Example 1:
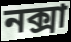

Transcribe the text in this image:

নক্সা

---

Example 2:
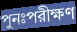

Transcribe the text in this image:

পুনঃপরীক্ষণ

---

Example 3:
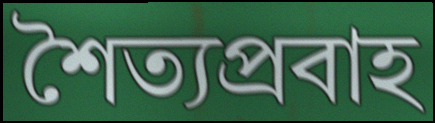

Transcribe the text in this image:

শৈত্যপ্রবাহ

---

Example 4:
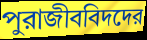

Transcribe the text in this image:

পুরাজীববিদদের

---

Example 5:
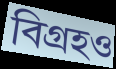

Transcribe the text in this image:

বিগ্রহও